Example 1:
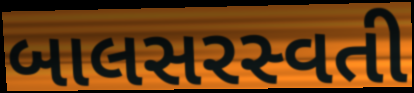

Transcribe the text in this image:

બાલસરસ્વતી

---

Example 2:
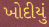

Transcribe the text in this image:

ખોદીયું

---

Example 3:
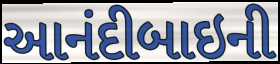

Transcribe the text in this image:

આનંદીબાઇની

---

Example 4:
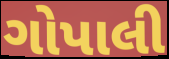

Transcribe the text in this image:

ગોપાલી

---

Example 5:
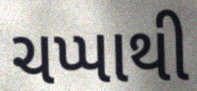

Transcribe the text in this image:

ચપ્પાથી